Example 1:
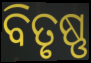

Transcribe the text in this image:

ବିତୃଷ୍ଣ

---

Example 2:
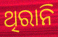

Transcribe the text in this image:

ଥିରାନି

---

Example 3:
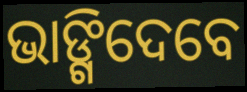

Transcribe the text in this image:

ଭାଙ୍ଗିଦେବେ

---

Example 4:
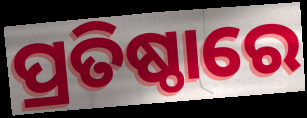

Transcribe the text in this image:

ପ୍ରତିଷ୍ଠାରେ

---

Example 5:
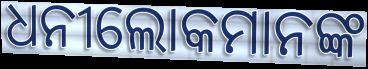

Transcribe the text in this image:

ଧନୀଲୋକମାନଙ୍କ